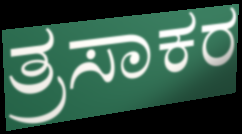
ತ್ರಸಾಕರ